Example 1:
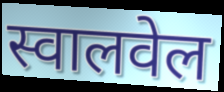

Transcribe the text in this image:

स्वालवेल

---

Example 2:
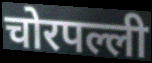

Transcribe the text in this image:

चोरपल्ली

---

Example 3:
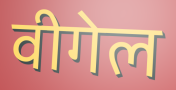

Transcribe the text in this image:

वीगेल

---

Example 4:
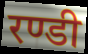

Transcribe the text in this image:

रण्डी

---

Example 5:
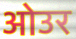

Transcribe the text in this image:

ओउर